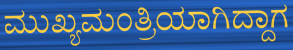
ಮುಖ್ಯಮಂತ್ರಿಯಾಗಿದ್ದಾಗ